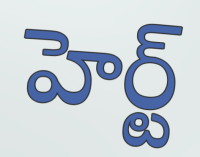
హెర్ట్